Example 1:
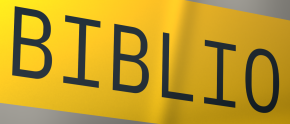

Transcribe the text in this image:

BIBLIO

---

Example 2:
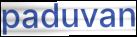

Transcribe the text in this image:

paduvan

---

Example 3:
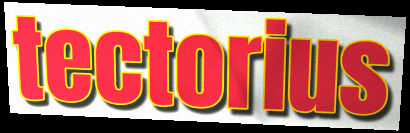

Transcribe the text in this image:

tectorius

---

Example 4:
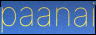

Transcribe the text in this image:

paanai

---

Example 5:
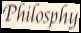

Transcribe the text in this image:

Philosphy